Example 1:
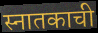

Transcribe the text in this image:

स्नातकाची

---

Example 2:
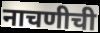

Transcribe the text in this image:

नाचणीची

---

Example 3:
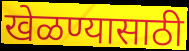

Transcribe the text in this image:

खेळण्यासाठी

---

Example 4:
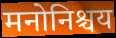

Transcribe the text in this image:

मनोनिश्चय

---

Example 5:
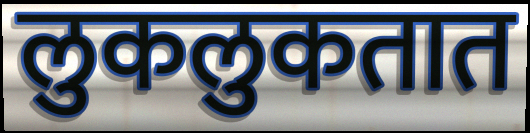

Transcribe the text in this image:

लुकलुकतात